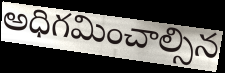
అధిగమించాల్సిన